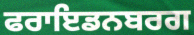
ਫਰਾਇਡਨਬਰਗ